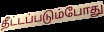
தீட்டப்படும்போது